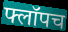
फ्लॉपच